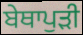
ਬੇਥਾਪੁੜੀ